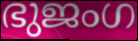
ഭുജംഗ